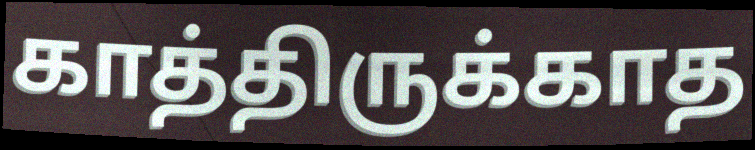
காத்திருக்காத